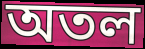
অতল